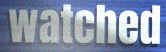
watched